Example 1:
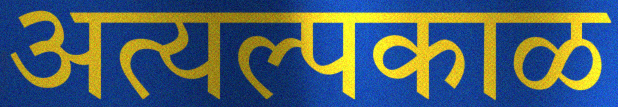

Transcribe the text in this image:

अत्यल्पकाळ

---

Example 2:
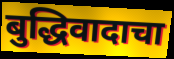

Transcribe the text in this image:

बुद्धिवादाचा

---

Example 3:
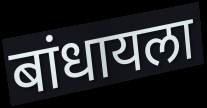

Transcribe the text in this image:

बांधायला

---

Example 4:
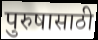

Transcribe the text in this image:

पुरुषासाठी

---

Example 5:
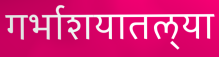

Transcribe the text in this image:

गर्भाशयातल्या